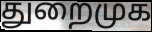
துறைமுக